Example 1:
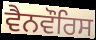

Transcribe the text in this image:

ਵੈਨਵੌਰਿਸ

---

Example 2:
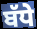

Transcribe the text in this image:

ਬੱਧੇ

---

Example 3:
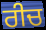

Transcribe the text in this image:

ਰੀਚ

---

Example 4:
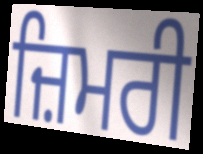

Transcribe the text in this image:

ਜ਼ਿਮਰੀ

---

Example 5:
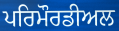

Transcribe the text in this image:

ਪਰਿਮੌਰਡੀਅਲ